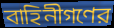
বাহিনীগণের